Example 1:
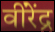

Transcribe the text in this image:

वींरेंद्र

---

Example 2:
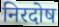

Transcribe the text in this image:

निरदोष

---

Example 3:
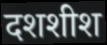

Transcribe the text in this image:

दशशीश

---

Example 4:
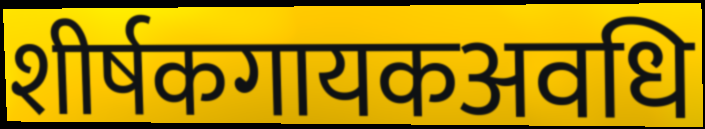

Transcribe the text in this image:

शीर्षकगायकअवधि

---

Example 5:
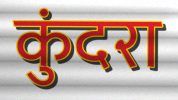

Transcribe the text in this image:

कुंदरा